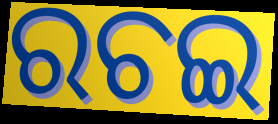
ରଚଇ